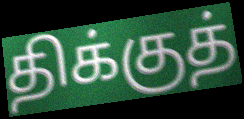
திக்குத்